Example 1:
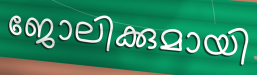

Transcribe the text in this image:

ജോലിക്കുമായി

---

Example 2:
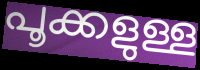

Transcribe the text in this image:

പൂക്കളുള്ള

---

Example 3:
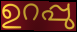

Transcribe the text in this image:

ഉറപ്പു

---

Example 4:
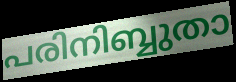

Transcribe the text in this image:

പരിനിബ്ബുതാ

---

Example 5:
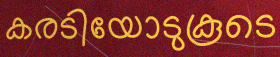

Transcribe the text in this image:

കരടിയോടുകൂടെ